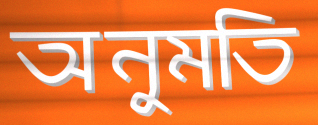
অনুমতি